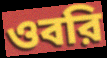
ওবরি